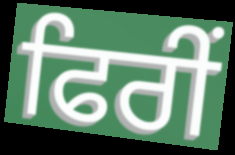
ਫਿਰੀਂ